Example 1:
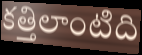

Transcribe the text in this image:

కత్తిలాంటిది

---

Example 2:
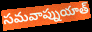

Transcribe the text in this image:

సమవాప్నుయాత్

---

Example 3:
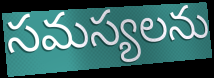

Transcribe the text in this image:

సమస్యలను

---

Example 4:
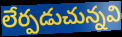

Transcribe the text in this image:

లేర్పడుచున్నవి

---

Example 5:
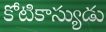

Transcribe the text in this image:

కోటికాస్యుడు